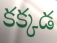
కక్కడ